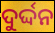
ଦୁର୍ଦ୍ଦନ